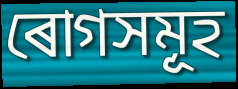
ৰোগসমূহ